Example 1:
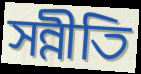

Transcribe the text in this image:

সন্নীতি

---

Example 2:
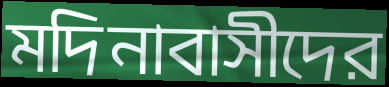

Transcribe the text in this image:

মদিনাবাসীদের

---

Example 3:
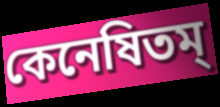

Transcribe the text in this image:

কেনেষিতম্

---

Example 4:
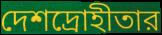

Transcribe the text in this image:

দেশদ্রোহীতার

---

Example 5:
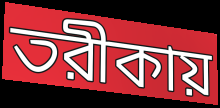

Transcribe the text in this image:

তরীকায়